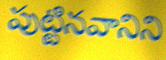
పుట్టినవానిని